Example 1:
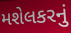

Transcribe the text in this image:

મશેલકરનું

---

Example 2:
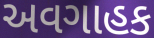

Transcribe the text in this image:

અવગાહક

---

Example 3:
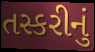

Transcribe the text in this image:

તસ્કરીનું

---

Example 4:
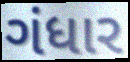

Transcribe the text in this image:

ગંધાર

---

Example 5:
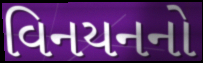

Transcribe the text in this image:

વિનયનનો